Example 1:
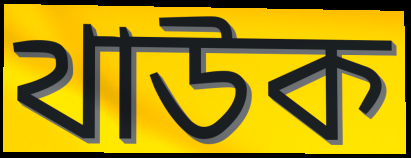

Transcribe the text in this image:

থাউক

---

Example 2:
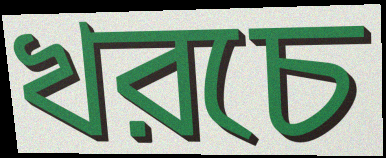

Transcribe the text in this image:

খরচে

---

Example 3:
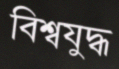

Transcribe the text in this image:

বিশ্বযুদ্ধ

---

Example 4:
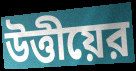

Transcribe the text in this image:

উত্তীয়ের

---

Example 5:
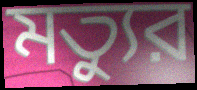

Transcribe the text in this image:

মত্যুর